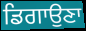
ਡਿਗਾਉਣਾ